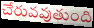
చేరువవుతుంది